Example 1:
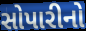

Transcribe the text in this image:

સોપારીનો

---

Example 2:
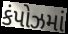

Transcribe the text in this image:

કંપોઝમાં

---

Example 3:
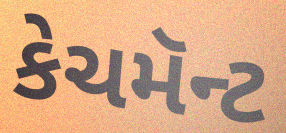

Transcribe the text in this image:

કેચમૅન્ટ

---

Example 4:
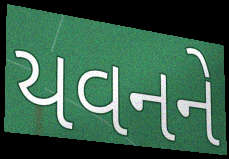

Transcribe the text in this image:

યવનને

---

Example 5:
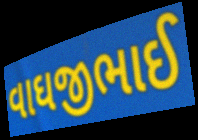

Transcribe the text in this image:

વાઘજીભાઈ